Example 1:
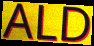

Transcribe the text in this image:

ALD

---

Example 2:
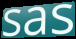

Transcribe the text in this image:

sas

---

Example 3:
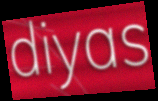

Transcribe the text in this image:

diyas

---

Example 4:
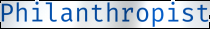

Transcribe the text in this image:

Philanthropist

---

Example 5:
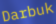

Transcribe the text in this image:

Darbuk